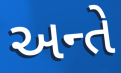
અન્તે